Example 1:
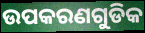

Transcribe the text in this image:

ଉପକରଣଗୁଡିକ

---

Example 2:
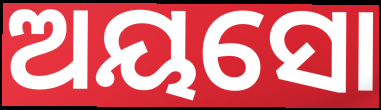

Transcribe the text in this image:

ଅୟସୋ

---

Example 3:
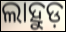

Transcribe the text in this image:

ଲାହୁଡ଼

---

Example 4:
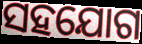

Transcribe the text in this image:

ସହଯୋଗ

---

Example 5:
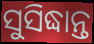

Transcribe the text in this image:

ସୁସିଦ୍ଧାନ୍ତ